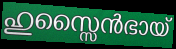
ഹുസ്സൈൻഭായ്